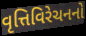
વૃત્તિવિરેચનનો